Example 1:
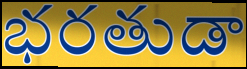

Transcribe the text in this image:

భరతుడా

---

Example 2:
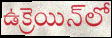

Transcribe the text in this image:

ఉక్రెయిన్‌లో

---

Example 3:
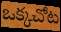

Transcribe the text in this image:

ఒక్కచోట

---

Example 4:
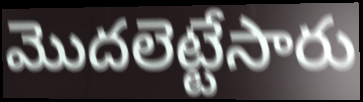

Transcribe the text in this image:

మొదలెట్టేసారు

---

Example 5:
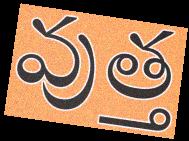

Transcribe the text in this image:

వుత్త